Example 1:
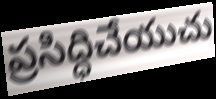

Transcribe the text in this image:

ప్రసిద్ధిచేయుచు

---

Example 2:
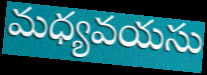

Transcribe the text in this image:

మధ్యవయసు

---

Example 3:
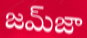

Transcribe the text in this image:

జమ్‌జా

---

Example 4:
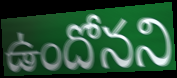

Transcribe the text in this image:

ఉందోనని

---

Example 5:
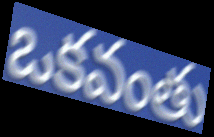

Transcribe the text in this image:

ఒకవంతు